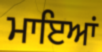
ਮਾਇਆਂ